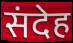
संदेह